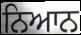
ਨਿਆਨ